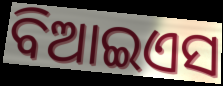
ବିଆଇଏସ